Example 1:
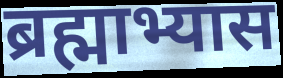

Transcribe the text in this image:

ब्रह्माभ्यास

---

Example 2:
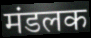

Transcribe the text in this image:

मंडलक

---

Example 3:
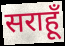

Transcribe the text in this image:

सराहूँ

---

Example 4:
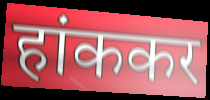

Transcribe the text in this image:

हांककर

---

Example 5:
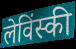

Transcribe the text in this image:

लेविंस्की